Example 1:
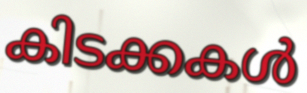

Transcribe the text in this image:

കിടക്കകൾ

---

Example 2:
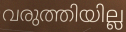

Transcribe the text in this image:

വരുത്തിയില്ല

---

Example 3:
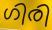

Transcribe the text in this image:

ഗിരി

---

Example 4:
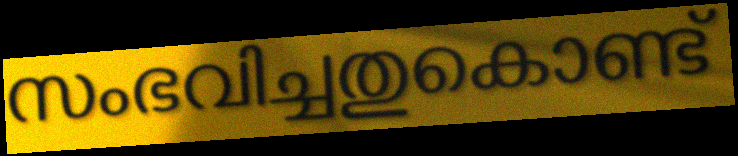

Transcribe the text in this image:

സംഭവിച്ചതുകൊണ്ട്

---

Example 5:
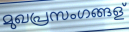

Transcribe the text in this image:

മുഖപ്രസംഗങ്ങള്